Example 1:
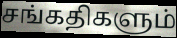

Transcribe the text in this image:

சங்கதிகளும்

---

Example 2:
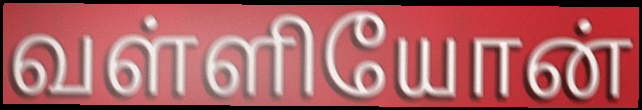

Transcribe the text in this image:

வள்ளியோன்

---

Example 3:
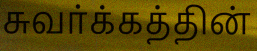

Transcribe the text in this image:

சுவர்க்கத்தின்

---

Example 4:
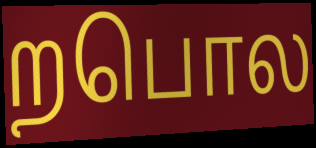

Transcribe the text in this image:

றபொல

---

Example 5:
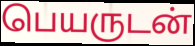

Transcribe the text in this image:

பெயருடன்